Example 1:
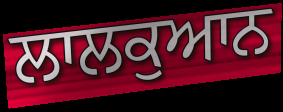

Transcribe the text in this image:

ਲਾਲਕੁਆਨ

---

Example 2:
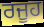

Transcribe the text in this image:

ਰਜੂਹ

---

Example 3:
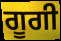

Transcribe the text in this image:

ਗੂਗੀ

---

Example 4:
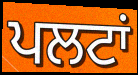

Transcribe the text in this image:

ਪਲਟਾਂ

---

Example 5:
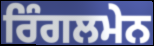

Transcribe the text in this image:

ਰਿੰਗਲਮੇਨ